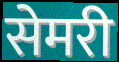
सेमरी